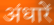
अंधारें